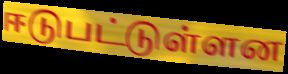
ஈடுபட்டுள்ளன